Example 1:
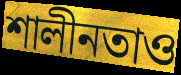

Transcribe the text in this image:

শালীনতাও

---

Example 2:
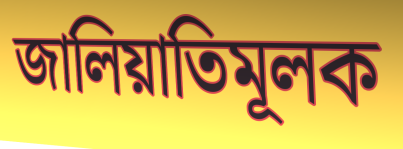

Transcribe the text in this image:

জালিয়াতিমূলক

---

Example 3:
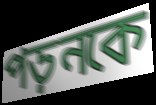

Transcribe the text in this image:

পড়নকে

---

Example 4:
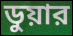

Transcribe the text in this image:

ডুয়ার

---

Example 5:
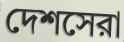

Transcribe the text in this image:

দেশসেরা